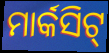
ମାର୍କସିଟ୍